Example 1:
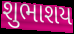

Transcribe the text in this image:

શુભાશય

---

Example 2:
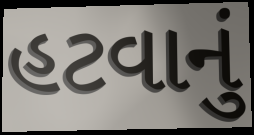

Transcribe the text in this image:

હટવાનું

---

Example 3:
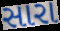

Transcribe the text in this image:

સારા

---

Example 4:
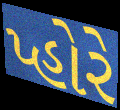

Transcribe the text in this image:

પ્હોરે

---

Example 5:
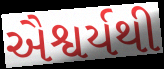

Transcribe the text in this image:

ઐશ્વર્યથી